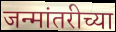
जन्मांतरीच्या